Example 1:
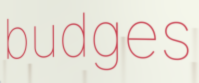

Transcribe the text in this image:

budges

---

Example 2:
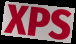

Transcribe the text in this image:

XPS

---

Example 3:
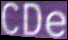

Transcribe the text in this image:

CDe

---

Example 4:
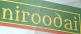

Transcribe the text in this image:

niroodai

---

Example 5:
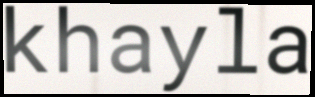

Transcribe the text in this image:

khayla